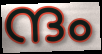
ന്ദം